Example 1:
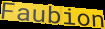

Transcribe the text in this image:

Faubion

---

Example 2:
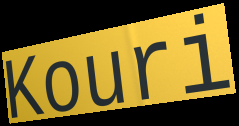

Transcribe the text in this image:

Kouri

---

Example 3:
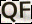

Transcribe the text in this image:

QF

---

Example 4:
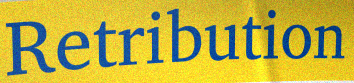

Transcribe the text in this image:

Retribution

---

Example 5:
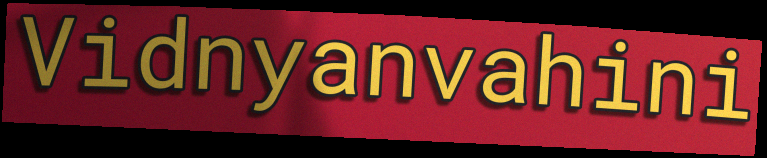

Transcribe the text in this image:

Vidnyanvahini